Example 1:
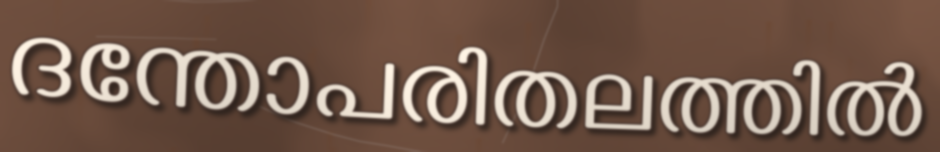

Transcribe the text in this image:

ദന്തോപരിതലത്തിൽ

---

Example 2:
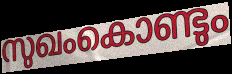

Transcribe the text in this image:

സുഖംകൊണ്ടും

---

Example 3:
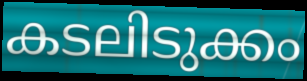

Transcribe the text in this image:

കടലിടുക്കം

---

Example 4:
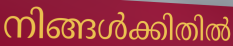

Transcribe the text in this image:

നിങ്ങൾക്കിതിൽ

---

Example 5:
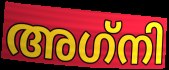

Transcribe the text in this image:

അഗ്‌നി